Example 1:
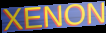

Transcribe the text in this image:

XENON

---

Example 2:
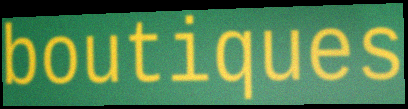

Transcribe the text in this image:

boutiques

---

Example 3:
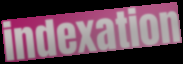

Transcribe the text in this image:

indexation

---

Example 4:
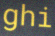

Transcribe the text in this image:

ghi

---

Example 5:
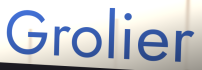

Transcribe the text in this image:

Grolier